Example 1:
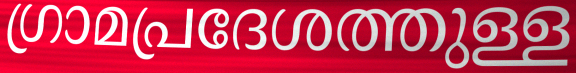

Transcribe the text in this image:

ഗ്രാമപ്രദേശത്തുള്ള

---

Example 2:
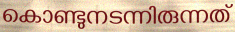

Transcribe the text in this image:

കൊണ്ടുനടന്നിരുന്നത്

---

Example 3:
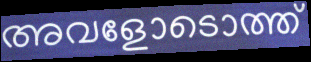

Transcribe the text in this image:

അവളോടൊത്ത്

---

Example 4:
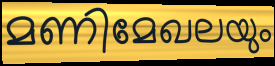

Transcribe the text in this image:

മണിമേഖലയും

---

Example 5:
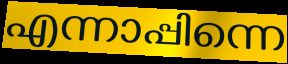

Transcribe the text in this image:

എന്നാപ്പിന്നെ